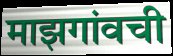
माझगांवची